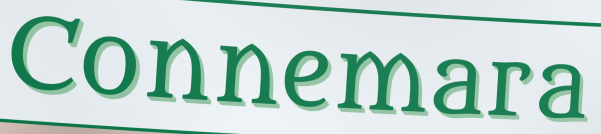
Connemara